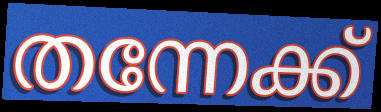
തന്നേക്ക്